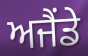
ਅਜੈਂਡੇ